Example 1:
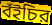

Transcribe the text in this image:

বঁইচির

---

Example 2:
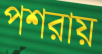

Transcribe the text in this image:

পশরায়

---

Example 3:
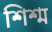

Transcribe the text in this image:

শিশ্ম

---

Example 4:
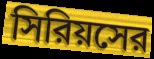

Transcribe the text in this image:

সিরিয়সের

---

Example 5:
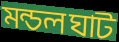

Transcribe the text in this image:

মন্ডলঘাট